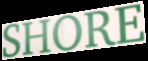
SHORE